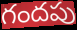
గందపు